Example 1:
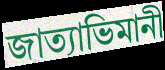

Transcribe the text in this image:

জাত্যাভিমানী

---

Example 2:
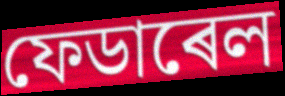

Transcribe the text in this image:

ফেডাৰেল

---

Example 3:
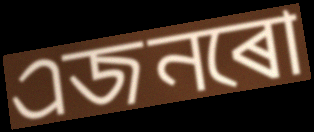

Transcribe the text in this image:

এজনৰো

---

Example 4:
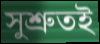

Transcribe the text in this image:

সুশ্ৰুতই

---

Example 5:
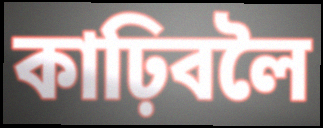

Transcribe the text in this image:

কাঢ়িবলৈ